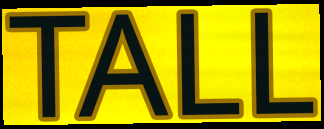
TALL